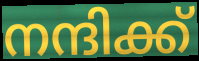
നന്ദിക്ക്